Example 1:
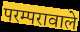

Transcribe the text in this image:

परम्परावाले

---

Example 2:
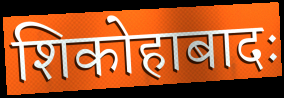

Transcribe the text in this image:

शिकोहाबादः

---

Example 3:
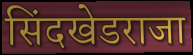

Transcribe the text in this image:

सिंदखेडराजा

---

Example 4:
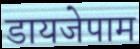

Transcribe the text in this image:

डायजेपाम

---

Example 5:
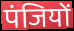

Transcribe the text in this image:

पंजियों